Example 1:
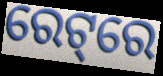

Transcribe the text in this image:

ରେଟ୍‌ରେ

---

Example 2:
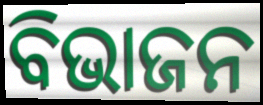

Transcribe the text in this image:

ବିଭାଜନ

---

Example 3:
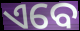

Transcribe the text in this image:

ଏବେ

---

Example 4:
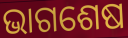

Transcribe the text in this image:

ଭାଗଶେଷ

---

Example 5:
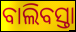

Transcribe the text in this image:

ବାଲିବସ୍ତା